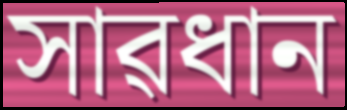
সাৱধান